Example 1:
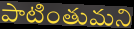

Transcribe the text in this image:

పాటింతుమని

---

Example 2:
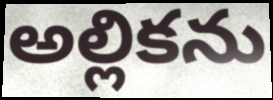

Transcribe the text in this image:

అల్లికను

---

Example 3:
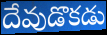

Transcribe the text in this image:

దేవుడొకడు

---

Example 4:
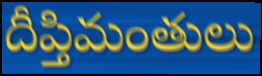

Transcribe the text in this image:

దీప్తిమంతులు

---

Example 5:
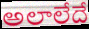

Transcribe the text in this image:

అలాలేదే